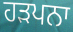
ਹੜਪਨਾ